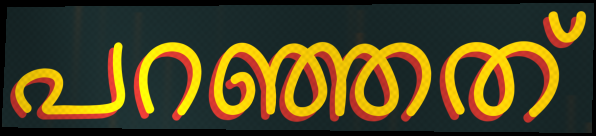
പറഞ്ഞത്